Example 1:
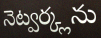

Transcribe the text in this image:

నెట్వర్క్లను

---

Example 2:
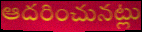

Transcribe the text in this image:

ఆదరించునట్లు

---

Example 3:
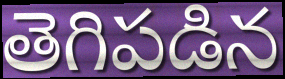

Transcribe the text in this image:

తెగిపడిన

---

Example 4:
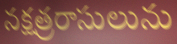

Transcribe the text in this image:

నక్షత్రరాసులును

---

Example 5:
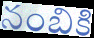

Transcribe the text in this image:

నంబికి